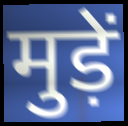
मुड़ें